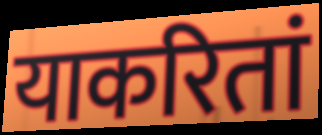
याकरितां